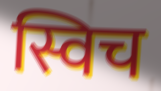
स्विच